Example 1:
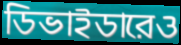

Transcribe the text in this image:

ডিভাইডারেও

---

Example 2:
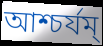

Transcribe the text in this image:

আশ্চর্যম্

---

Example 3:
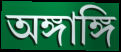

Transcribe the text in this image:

অঙ্গাঙ্গি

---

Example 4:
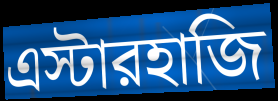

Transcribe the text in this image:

এস্টারহাজি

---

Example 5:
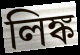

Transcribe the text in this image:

লিঙ্ক